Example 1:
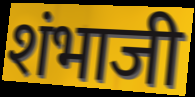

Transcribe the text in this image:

शंभाजी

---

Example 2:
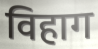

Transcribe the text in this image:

विहाग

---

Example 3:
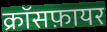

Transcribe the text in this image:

क्रॉसफ़ायर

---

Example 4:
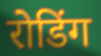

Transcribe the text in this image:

रोडिंग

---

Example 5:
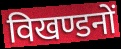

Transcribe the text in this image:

विखण्डनों